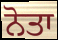
ਨੋਤਾ